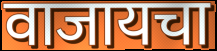
वाजायचा